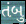
તંબુ